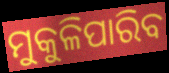
ମୁକୁଳିପାରିବ